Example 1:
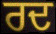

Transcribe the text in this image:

ਰਦ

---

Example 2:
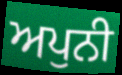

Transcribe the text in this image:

ਅਪੁਨੀ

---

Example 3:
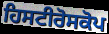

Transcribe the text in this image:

ਹਿਸਟੀਰੋਸਕੋਪ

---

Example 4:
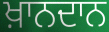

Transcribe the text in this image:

ਖ਼ਾਨਦਾਨ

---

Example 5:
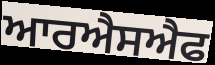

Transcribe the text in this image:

ਆਰਐਸਐਫ